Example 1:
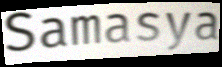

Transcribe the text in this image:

Samasya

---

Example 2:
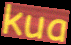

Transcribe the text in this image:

kua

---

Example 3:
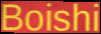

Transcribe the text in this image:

Boishi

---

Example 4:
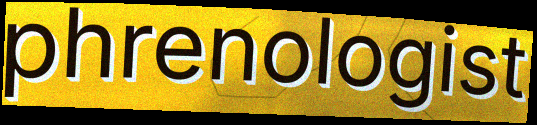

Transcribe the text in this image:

phrenologist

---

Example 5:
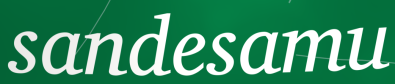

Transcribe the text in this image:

sandesamu